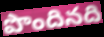
పొందినది